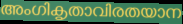
അംഗികൃതാവിരതയാന